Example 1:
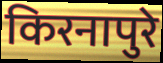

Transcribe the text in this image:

किरनापुरे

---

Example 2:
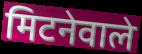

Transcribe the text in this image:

मिटनेवाले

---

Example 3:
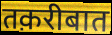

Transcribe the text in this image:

तक़रीबात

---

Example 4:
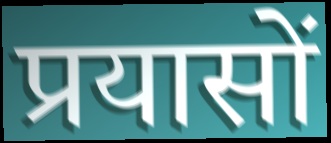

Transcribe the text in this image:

प्रयासों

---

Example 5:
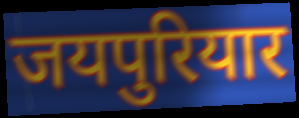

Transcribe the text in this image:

जयपुरियार